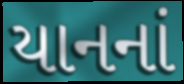
યાનનાં